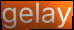
gelay